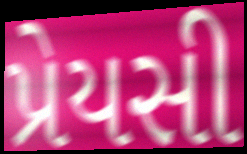
પ્રેયસી